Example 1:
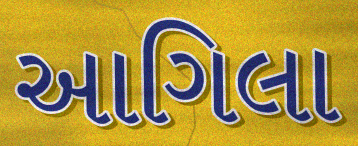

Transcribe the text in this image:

આગિલા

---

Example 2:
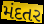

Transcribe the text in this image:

મંદતર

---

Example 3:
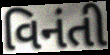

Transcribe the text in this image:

વિનંતી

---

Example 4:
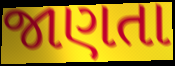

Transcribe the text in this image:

જાણતા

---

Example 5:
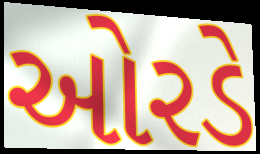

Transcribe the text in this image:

ઓરડે